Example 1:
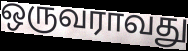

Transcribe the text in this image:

ஒருவராவது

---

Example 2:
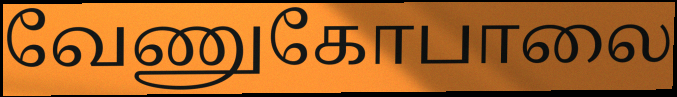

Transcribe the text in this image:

வேணுகோபாலை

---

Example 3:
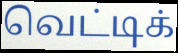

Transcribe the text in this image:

வெட்டிக்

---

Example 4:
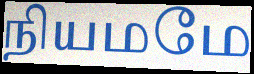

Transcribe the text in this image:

நியமமே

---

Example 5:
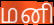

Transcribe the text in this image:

மனி